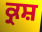
ਕ੍ਰਸ਼